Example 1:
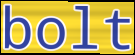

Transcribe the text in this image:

bolt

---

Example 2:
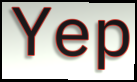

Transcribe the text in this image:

Yep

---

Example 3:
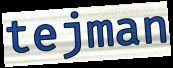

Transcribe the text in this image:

tejman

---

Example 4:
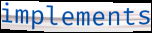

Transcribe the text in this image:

implements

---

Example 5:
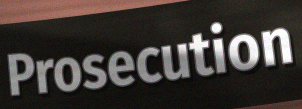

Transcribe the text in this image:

Prosecution